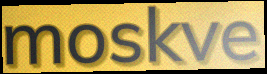
moskve